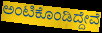
ಅಂಟಿಕೊಂಡಿದ್ದೇವೆ